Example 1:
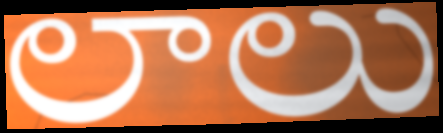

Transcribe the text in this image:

లాలు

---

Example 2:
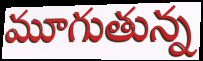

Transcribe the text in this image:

మూగుతున్న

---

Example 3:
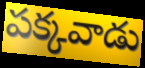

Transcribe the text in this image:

పక్కవాడు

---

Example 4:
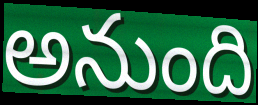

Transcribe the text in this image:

అనుంది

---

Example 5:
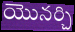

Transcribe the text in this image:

యొనర్చి